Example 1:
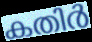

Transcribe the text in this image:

കതിർ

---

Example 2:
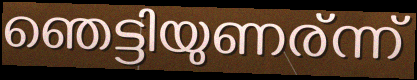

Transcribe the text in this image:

ഞെട്ടിയുണര്ന്ന്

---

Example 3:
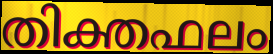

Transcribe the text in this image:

തിക്തഫലം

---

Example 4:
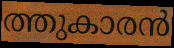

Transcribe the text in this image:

ത്തുകാരൻ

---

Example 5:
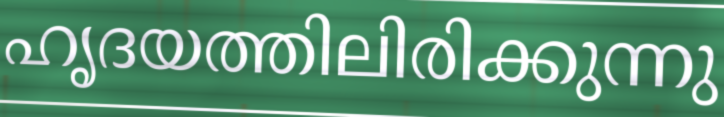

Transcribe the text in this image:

ഹൃദയത്തിലിരിക്കുന്നു